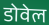
डोवेल